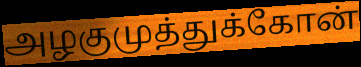
அழகுமுத்துக்கோன்